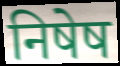
निषेष